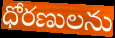
ధోరణులను